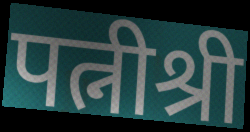
पत्नीश्री